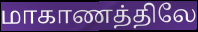
மாகாணத்திலே